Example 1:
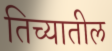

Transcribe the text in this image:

तिच्यातील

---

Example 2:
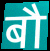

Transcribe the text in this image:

बौ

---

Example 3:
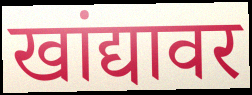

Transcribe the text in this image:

खांद्यावर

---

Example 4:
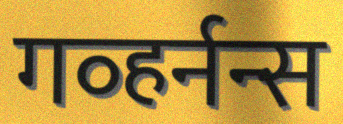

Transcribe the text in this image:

गव्हर्नन्स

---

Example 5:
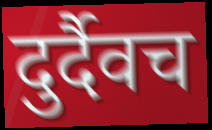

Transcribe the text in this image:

दुर्दैवच